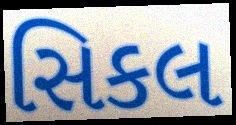
સિકલ